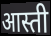
आस्ती